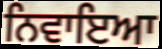
ਨਿਵਾਇਆ